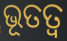
ଭୂତତ୍ୱ